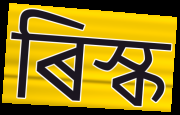
ৰিস্ক